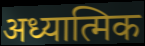
अध्यात्मिक